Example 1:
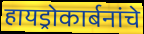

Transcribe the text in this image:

हायड्रोकार्बनांचे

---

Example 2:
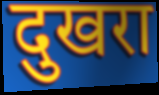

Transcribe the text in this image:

दुखरा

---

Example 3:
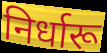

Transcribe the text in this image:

निर्धारू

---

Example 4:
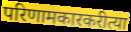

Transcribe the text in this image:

परिणामकारकरीत्या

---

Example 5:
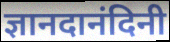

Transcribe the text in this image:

ज्ञानदानंदिनी